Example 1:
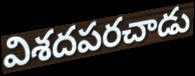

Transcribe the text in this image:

విశదపరచాడు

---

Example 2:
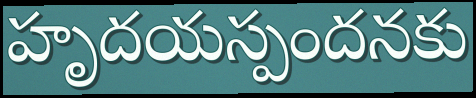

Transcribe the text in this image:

హృదయస్పందనకు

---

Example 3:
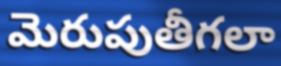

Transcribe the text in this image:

మెరుపుతీగలా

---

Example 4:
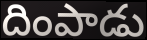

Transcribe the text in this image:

దింపాడు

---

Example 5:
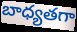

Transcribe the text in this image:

బాధ్యతగా